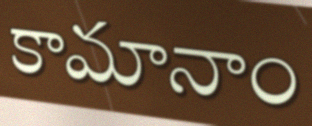
కామానాం